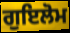
ਗੁਇਲੋਮ